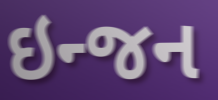
ઇન્જન